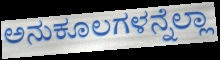
ಅನುಕೂಲಗಳನ್ನೆಲ್ಲಾ